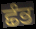
ਛੰਭ